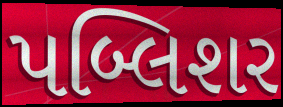
પબ્લિશર